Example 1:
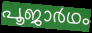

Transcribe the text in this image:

പൂജാർഥം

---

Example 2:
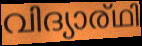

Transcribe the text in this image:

വിദ്യാര്ഥി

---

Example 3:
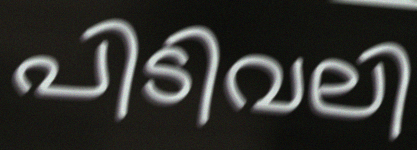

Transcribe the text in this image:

പിടിവലി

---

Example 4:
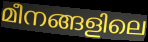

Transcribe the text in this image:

മീനങ്ങളിലെ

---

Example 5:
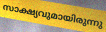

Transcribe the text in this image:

സാക്ഷ്യവുമായിരുന്നു